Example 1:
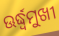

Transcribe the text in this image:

ଊର୍ଦ୍ଧ୍ବମୁଖୀ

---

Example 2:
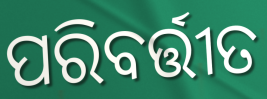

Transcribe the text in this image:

ପରିବର୍ତ୍ତୀତ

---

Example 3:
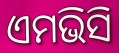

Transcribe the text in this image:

ଏମଭିସି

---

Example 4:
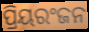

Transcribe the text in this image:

ପ୍ରିୟରଂଜନ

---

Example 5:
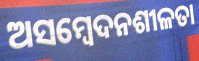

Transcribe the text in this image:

ଅସମ୍ବେଦନଶୀଳତା